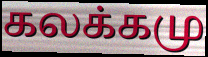
கலக்கமு